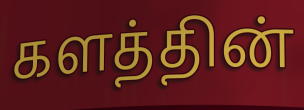
களத்தின்